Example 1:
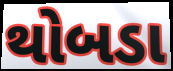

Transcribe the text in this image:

થોબડા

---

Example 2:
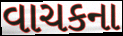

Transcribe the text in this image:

વાચકના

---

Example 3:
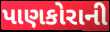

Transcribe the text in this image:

પાણકોરાની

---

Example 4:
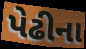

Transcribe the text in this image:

પેઢીના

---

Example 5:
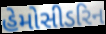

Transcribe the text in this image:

હેમોસીડરિન